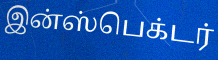
இன்ஸ்பெக்டர்